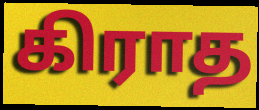
கிராத